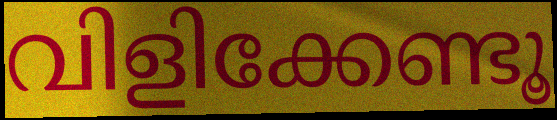
വിളിക്കേണ്ടൂ